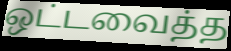
ஒட்டவைத்த